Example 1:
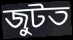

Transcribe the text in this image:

জুটত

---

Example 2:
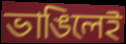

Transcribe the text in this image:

ভাঙিলেই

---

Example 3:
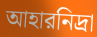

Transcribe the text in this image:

আহারনিদ্রা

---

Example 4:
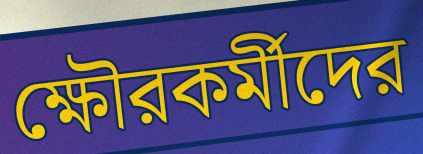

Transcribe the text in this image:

ক্ষৌরকর্মীদের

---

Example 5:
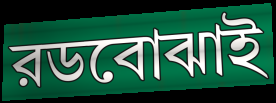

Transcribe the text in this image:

রডবোঝাই